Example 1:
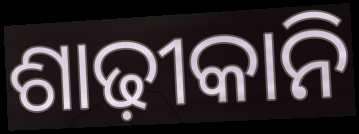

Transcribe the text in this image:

ଶାଢ଼ୀକାନି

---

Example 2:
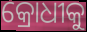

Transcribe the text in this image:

କ୍ରୋଧୀକୁ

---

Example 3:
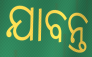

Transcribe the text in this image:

ଯାବନ୍ତ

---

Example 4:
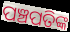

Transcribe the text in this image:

ପଞ୍ଚପତିଙ୍କ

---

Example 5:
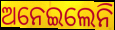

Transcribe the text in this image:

ଅନେଇଲେନି